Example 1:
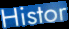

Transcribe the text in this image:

Histor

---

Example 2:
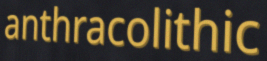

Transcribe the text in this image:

anthracolithic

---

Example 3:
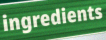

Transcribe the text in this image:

ingredients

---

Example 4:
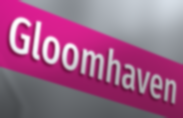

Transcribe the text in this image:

Gloomhaven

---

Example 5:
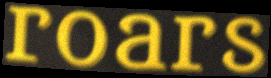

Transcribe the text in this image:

roars